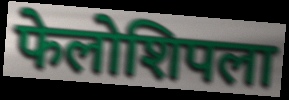
फेलोशिपला